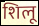
शिलू